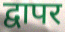
द्वापर